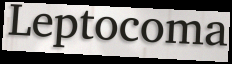
Leptocoma